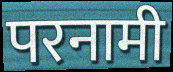
परनामी